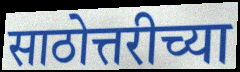
साठोत्तरीच्या